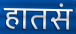
हातसं